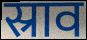
स्राव